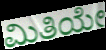
ಮಿತಿಯೇ